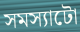
সমস্যাটো